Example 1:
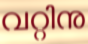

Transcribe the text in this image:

വറ്റിനു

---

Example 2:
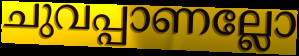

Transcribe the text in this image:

ചുവപ്പാണല്ലോ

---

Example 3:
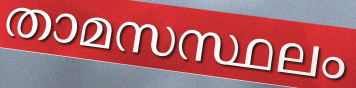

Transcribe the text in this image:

താമസസ്ഥലം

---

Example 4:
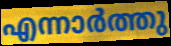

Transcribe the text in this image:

എന്നാർത്തു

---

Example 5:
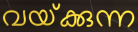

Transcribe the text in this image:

വയ്‌ക്കുന്ന